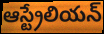
ఆస్ట్రేలియన్